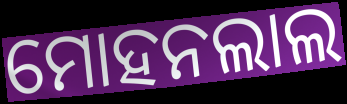
ମୋହନଲାଲ